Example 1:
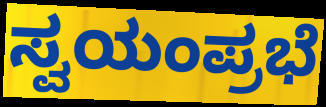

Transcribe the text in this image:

ಸ್ವಯಂಪ್ರಭೆ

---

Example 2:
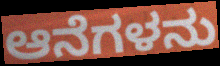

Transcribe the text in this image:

ಆನೆಗಳನು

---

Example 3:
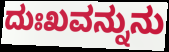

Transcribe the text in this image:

ದುಃಖವನ್ನುನು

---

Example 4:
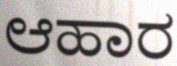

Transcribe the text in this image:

ಆಹಾರ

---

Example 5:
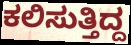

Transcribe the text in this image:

ಕಲಿಸುತ್ತಿದ್ದ